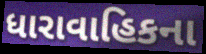
ધારાવાહિકના